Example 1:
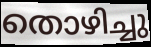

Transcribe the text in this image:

തൊഴിച്ചു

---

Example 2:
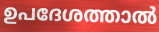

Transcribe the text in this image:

ഉപദേശത്താൽ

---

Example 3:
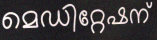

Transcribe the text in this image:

മെഡിറ്റേഷന്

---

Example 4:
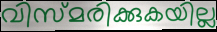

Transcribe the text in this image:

വിസ്മരിക്കുകയില്ല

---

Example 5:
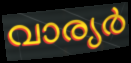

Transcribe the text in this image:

വാര്യർ